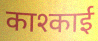
काश्काई